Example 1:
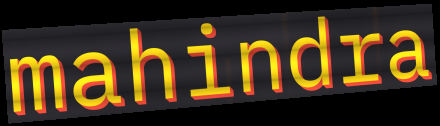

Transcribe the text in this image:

mahindra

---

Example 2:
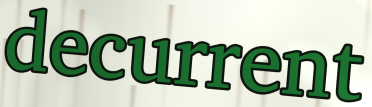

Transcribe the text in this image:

decurrent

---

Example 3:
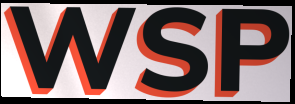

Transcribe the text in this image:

WSP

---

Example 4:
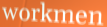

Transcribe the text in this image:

workmen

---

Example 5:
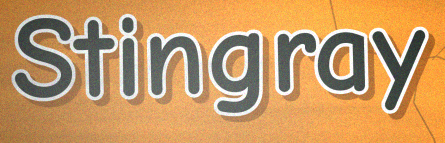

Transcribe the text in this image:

Stingray